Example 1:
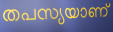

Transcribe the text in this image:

തപസ്യയാണ്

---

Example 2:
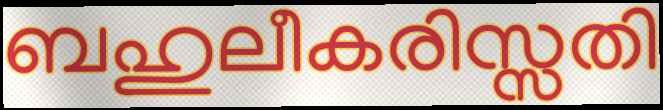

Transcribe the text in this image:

ബഹുലീകരിസ്സതി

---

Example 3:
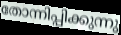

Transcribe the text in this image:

തോന്നിപ്പിക്കുന്നു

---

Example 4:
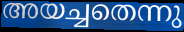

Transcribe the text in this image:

അയച്ചതെന്നു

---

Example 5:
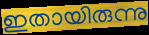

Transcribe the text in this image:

ഇതായിരുന്നു